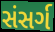
સંસર્ગ